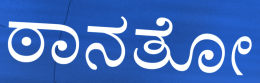
ಠಾನತೋ